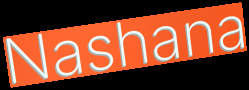
Nashana